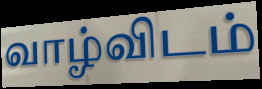
வாழ்விடம்